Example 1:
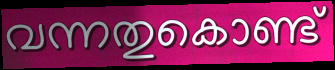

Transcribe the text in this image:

വന്നതുകൊണ്ട്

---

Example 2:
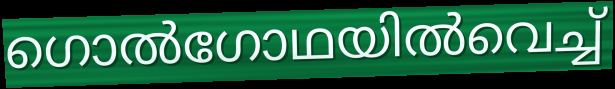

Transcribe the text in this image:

ഗൊൽഗോഥയിൽവെച്ച്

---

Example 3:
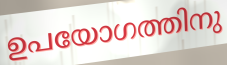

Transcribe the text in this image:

ഉപയോഗത്തിനു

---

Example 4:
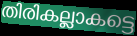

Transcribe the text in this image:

തിരികല്ലാകട്ടെ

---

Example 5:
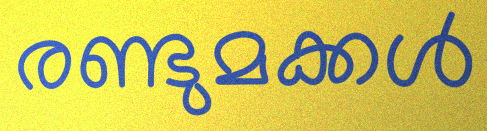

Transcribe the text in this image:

രണ്ടുമക്കൾ